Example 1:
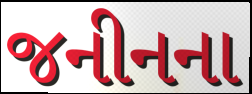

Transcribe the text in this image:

જનીનના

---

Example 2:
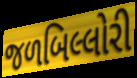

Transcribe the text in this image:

જળબિલ્લોરી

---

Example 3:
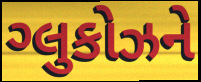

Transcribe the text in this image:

ગ્લુકોઝને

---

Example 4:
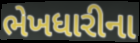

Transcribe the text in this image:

ભેખધારીના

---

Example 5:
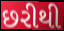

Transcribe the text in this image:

છરીથી